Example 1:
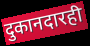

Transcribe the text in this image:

दुकानदारही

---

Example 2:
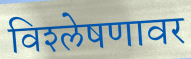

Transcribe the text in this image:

विश्लेषणावर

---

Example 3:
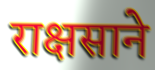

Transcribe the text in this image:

राक्षसाने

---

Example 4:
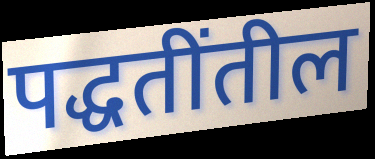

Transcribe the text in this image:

पद्धतींतील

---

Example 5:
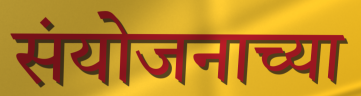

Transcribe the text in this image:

संयोजनाच्या